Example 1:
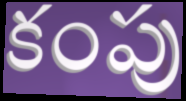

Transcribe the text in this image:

కంపు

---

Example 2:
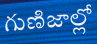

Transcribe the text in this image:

గుణిజాల్లో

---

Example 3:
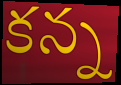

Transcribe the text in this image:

కన్న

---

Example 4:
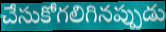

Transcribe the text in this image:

చేసుకోగలిగినప్పుడు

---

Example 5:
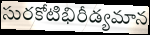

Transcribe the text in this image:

సురకోటిభిరీడ్యమాన